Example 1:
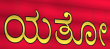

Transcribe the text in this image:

ಯತೋ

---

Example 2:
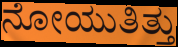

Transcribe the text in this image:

ನೋಯುತಿತ್ತು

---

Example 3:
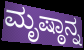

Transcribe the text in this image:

ಮೃಷ್ಠಾನ್ನ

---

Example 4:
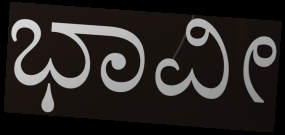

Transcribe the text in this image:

ಭಾವೀ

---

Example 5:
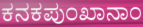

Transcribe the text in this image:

ಕನಕಪುಂಖಾನಾಂ